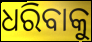
ଧରିବାକୁ